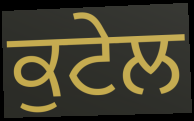
ਕੁਟੇਲ